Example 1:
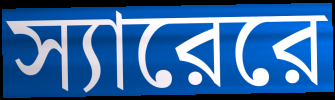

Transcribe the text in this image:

স্যারেরে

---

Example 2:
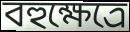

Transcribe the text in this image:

বহুক্ষেত্রে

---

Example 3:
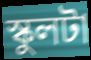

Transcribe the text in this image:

স্কুলটা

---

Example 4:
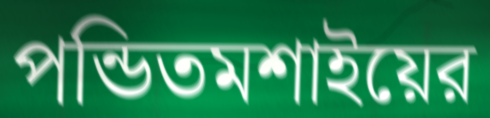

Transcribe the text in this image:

পন্ডিতমশাইয়ের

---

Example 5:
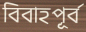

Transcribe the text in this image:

বিবাহপূর্ব